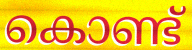
കൊണ്ട്